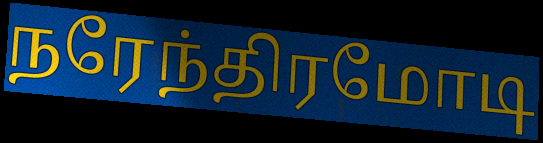
நரேந்திரமோடி